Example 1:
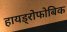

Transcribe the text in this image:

हायड्रोफोबिक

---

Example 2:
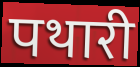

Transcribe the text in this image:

पथारी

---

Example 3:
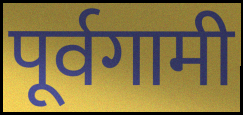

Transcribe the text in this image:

पूर्वगामी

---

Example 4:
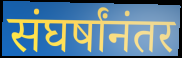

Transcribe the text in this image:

संघर्षांनंतर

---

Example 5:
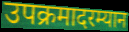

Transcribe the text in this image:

उपक्रमादरम्यान